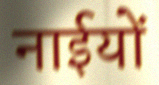
नाईयों